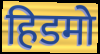
हिडमो